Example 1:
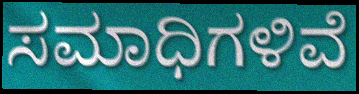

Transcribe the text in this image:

ಸಮಾಧಿಗಳಿವೆ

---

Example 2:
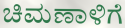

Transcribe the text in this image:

ಚಿಮಣಾಳಿಗೆ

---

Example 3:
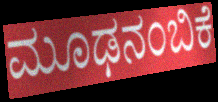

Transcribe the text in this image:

ಮೂಢನಂಬಿಕೆ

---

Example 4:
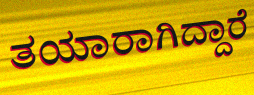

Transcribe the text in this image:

ತಯಾರಾಗಿದ್ದಾರೆ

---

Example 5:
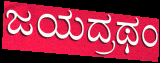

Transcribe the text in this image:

ಜಯದ್ರಥಂ